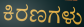
ಕಿರಣಗಳು